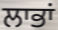
ਲਾਭਾਂ